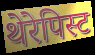
थेरेपिस्ट